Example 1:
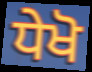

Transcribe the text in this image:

ਧੇਖੋ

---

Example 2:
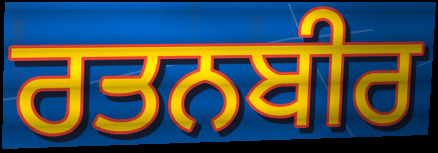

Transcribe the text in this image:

ਰਤਨਬੀਰ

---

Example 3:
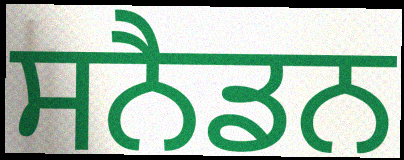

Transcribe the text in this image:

ਸਨੈਡਨ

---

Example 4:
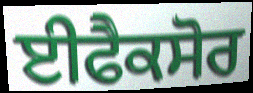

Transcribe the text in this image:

ਈਫੈਕਸੋਰ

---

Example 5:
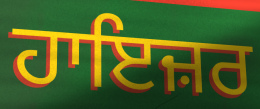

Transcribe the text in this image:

ਹਾਇਜ਼ਰ